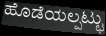
ಹೊಡೆಯಲ್ಪಟ್ಟು